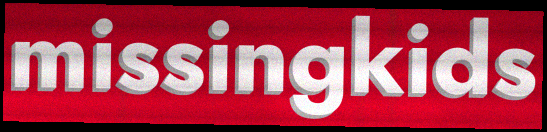
missingkids